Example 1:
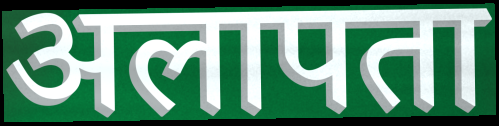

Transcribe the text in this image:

अलापता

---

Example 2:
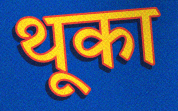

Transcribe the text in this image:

थूका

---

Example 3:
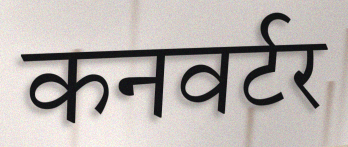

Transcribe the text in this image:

कनवर्टर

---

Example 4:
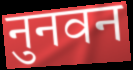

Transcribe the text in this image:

नुनवन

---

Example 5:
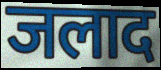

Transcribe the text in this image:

जलाद